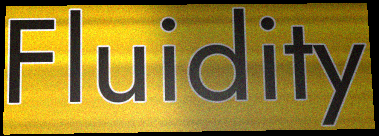
Fluidity